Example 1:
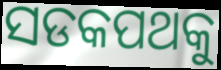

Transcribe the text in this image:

ସଡକପଥକୁ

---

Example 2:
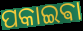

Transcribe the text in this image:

ପକାଇଵା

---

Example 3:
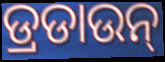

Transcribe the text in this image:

ଡ୍ରଡାଉନ୍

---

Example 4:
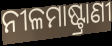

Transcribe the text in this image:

ନୀଳମାଷ୍ଟ୍ରାଣୀ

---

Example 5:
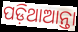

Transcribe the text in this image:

ପଡ଼ିଥାଆନ୍ତା